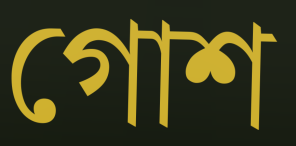
গোশ